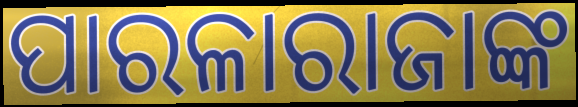
ପାରଳାରାଜାଙ୍କ